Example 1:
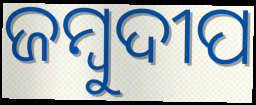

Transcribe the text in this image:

ଜମ୍ବୁଦୀପ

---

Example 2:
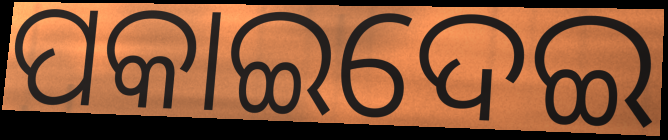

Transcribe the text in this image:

ପକାଇଦେଇ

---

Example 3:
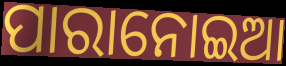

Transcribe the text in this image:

ପାରାନୋଇଆ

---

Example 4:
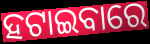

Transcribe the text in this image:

ହଟାଇବାରେ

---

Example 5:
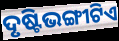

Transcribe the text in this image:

ଦୃଷ୍ଟିଭଙ୍ଗୀଟିଏ